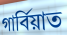
গার্বিয়াত